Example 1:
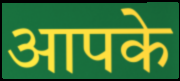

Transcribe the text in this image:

आपके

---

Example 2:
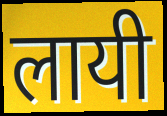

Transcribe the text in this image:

लायी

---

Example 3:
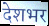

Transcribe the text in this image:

देशभर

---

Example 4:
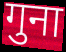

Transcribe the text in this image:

गुना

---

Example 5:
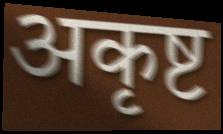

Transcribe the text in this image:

अकृष्ट